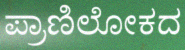
ಪ್ರಾಣಿಲೋಕದ